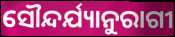
ସୌନ୍ଦର୍ଯ୍ୟାନୁରାଗୀ